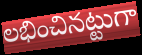
లభించినట్టుగా